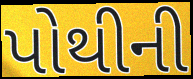
પોથીની